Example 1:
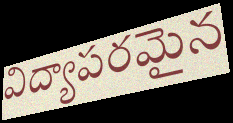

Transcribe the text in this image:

విద్యాపరమైన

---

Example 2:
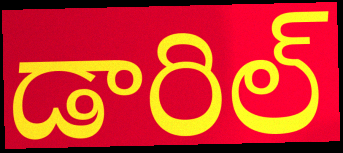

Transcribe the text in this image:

డారిల్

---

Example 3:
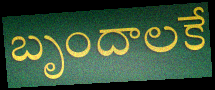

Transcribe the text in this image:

బృందాలకే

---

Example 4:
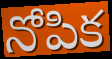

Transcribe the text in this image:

నోపిక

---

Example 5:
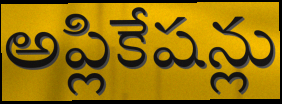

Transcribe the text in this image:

అప్లికేషన్లు